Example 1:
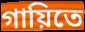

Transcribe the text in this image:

গায়িতে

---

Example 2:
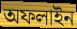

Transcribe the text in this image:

অফলাইন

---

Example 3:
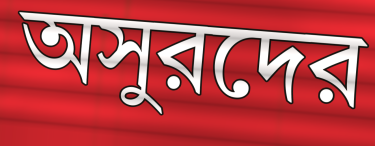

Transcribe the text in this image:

অসুরদের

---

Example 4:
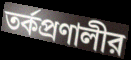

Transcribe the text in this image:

তর্কপ্রণালীর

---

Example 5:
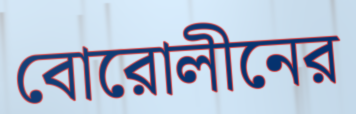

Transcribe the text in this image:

বোরোলীনের